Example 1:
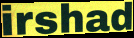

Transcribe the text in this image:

irshad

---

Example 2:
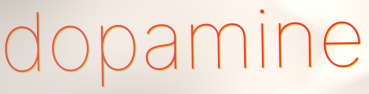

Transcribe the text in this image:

dopamine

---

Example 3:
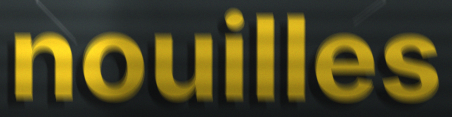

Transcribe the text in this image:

nouilles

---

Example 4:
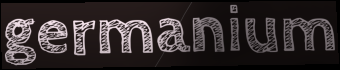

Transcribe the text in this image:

germanium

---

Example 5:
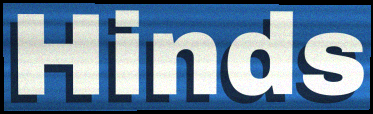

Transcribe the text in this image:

Hinds